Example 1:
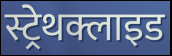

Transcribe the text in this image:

स्ट्रेथक्लाइड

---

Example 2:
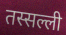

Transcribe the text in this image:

तस्सल्ली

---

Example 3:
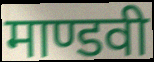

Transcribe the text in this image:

माण्डवी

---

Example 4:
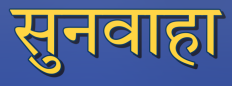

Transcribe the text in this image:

सुनवाहा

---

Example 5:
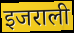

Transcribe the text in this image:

इजराली